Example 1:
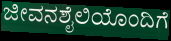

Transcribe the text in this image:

ಜೀವನಶೈಲಿಯೊಂದಿಗೆ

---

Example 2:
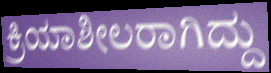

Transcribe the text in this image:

ಕ್ರಿಯಾಶೀಲರಾಗಿದ್ದು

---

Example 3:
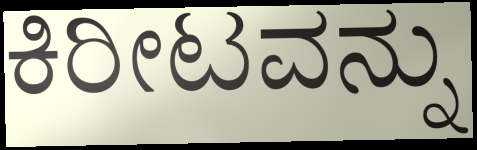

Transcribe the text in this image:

ಕಿರೀಟವನ್ನು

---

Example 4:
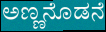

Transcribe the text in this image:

ಅಣ್ಣನೊಡನೆ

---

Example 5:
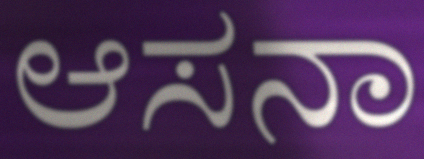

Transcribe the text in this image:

ಆಸನಾ